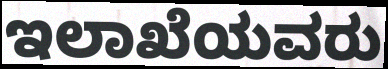
ಇಲಾಖೆಯವರು